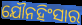
ଯୌନହିଂସାର